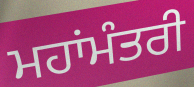
ਮਹਾਂਮੰਤਰੀ